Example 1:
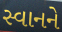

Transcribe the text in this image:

સ્વાનને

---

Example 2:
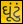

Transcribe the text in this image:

ઘૂંટું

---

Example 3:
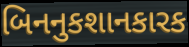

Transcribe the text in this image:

બિનનુકશાનકારક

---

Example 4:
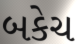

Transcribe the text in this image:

બકેચ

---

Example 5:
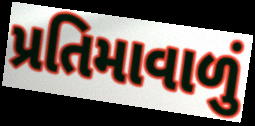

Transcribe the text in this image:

પ્રતિમાવાળું